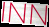
INN